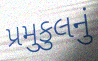
પ્રમુકુલનું